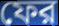
ফের